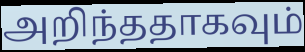
அறிந்ததாகவும்